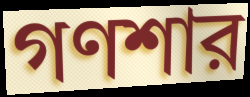
গণশার